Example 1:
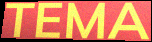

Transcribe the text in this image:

TEMA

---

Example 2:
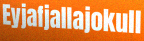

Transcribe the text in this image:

Eyjafjallajokull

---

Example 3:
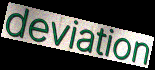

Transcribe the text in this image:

deviation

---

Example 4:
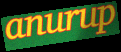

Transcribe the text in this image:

anurup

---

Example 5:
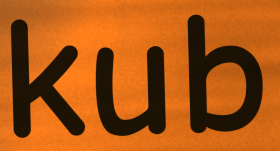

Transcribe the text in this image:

kub